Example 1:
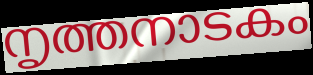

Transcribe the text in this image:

നൃത്തനാടകം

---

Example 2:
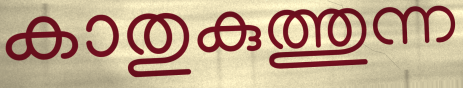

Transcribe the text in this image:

കാതുകുത്തുന്ന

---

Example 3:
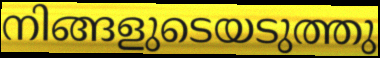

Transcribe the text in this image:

നിങ്ങളുടെയടുത്തു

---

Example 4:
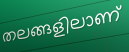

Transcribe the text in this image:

തലങ്ങളിലാണ്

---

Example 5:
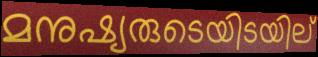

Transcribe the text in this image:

മനുഷ്യരുടെയിടയില്